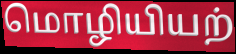
மொழியியற்